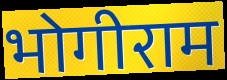
भोगीराम